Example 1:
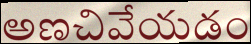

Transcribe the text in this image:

అణచివేయడం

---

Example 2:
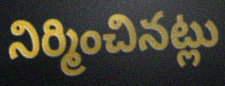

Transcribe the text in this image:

నిర్మించినట్లు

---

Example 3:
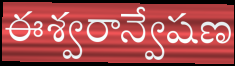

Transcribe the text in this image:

ఈశ్వరాన్వేషణ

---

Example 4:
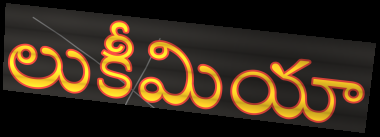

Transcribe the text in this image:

లుకీమియా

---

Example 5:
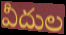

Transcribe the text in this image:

వీదుల